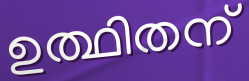
ഉത്ഥിതന്